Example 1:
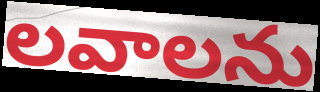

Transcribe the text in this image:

లవాలను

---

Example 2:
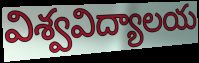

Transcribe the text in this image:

విశ్వవిద్యాలయ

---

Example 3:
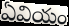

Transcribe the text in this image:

ఏవియం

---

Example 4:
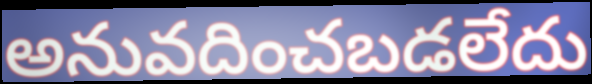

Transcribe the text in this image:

అనువదించబడలేదు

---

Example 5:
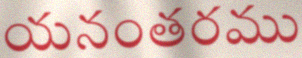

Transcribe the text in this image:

యనంతరము